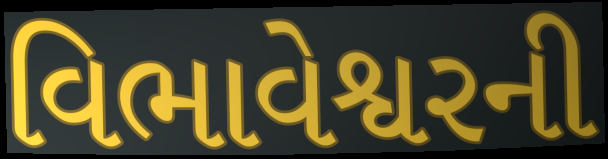
વિભાવેશ્વરની